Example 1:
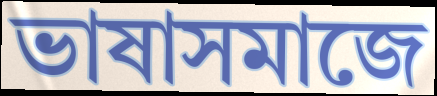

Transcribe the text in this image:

ভাষাসমাজে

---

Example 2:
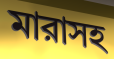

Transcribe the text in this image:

মারাসহ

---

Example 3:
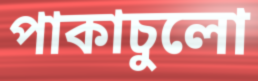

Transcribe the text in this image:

পাকাচুলো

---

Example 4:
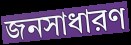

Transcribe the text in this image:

জনসাধারণ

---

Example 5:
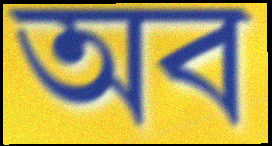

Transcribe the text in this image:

অব